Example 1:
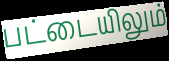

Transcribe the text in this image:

பட்டையிலும்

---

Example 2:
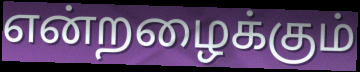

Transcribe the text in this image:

என்றழைக்கும்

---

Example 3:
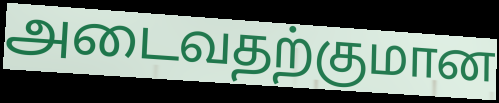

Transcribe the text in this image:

அடைவதற்குமான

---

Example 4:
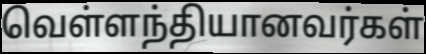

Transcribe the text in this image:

வெள்ளந்தியானவர்கள்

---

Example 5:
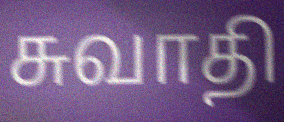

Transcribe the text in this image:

சுவாதி